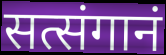
सत्संगानं